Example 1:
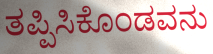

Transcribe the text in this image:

ತಪ್ಪಿಸಿಕೊಂಡವನು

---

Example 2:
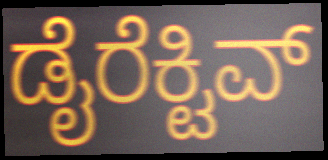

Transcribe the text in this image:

ಡೈರೆಕ್ಟಿವ್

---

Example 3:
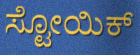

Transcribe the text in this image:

ಸ್ಟೋಯಿಕ್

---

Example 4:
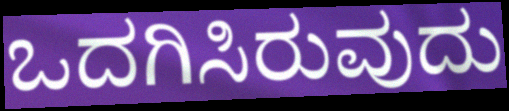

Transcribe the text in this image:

ಒದಗಿಸಿರುವುದು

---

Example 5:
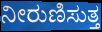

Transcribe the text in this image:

ನೀರುಣಿಸುತ್ತ